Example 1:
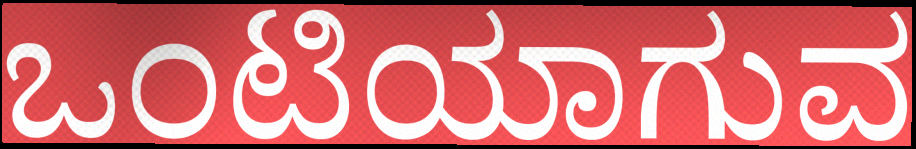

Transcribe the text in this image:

ಒಂಟಿಯಾಗುವ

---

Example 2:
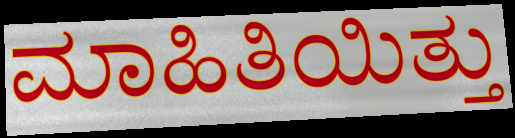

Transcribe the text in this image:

ಮಾಹಿತಿಯಿತ್ತು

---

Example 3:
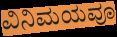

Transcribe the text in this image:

ವಿನಿಮಯವೂ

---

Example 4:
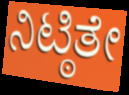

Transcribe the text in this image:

ನಿಟ್ಠಿತೇ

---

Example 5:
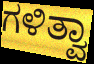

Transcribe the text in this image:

ಗಳಿತ್ವಾ